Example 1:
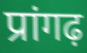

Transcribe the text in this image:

प्रांगढ़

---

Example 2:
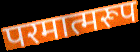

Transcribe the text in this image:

परमात्मरूप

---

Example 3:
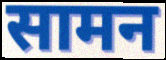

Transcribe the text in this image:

सामन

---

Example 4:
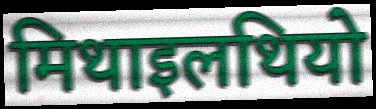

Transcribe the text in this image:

मिथाइलथियो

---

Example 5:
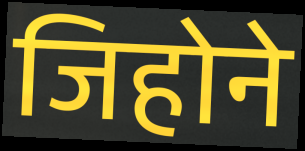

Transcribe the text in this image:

जिहोने